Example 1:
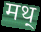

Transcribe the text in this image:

मथ्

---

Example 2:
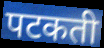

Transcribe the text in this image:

पटकती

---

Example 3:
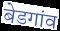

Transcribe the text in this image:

बेडगांव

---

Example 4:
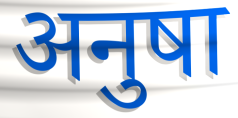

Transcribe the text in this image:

अनुषा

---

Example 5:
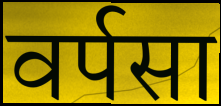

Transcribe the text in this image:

वर्पसा